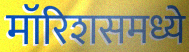
मॉरिशसमध्ये